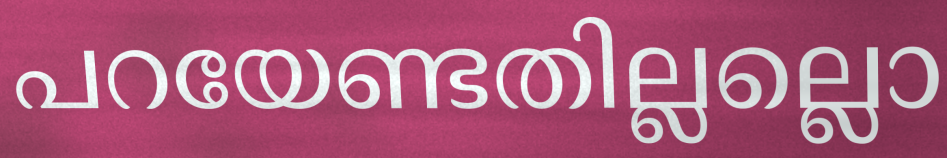
പറയേണ്ടതില്ലല്ലൊ